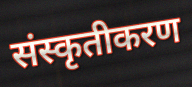
संस्कृतीकरण